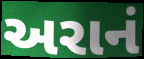
અરાનં